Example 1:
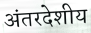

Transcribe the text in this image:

अंतरदेशीय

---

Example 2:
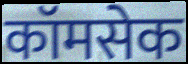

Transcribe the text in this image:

कॉमसेक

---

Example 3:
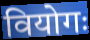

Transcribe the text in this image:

वियोगः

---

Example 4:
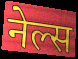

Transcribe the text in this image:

नेल्स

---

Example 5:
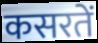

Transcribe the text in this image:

कसरतें